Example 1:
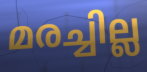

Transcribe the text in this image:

മരച്ചില്ല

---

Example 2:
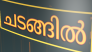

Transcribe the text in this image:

ചടങ്ങിൽ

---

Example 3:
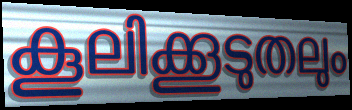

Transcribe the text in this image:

കൂലിക്കൂടുതലും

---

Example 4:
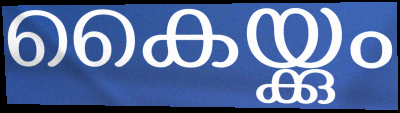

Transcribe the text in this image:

കൈയ്ക്കും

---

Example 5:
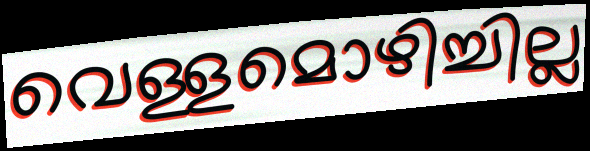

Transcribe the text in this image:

വെള്ളമൊഴിച്ചില്ല